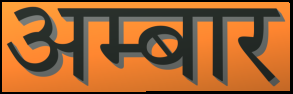
अम्बार